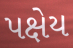
પક્ષેય